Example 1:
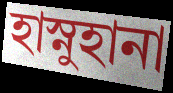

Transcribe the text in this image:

হাস্নুহানা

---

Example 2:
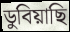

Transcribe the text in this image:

ডুবিয়াছি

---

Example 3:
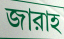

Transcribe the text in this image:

জারাহ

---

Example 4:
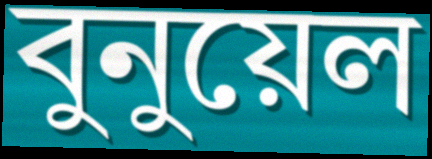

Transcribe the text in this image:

বুনুয়েল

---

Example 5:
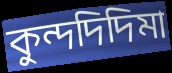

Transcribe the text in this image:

কুন্দদিদিমা